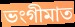
ভংগীমাত